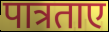
पात्रताए